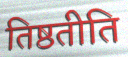
तिष्ठतीति